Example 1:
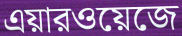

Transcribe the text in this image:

এয়ারওয়েজে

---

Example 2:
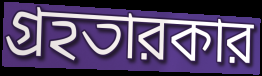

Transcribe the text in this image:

গ্রহতারকার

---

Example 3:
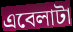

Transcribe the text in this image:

এবেলাটা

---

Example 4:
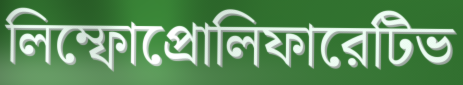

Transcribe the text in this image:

লিম্ফোপ্রোলিফারেটিভ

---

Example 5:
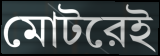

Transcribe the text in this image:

মোটরেই